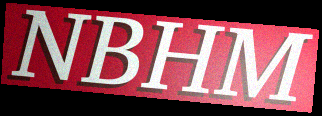
NBHM